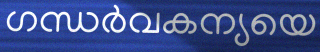
ഗന്ധർവകന്യയെ